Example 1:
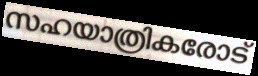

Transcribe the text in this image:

സഹയാത്രികരോട്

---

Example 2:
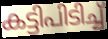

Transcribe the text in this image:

കട്ടിപിടിച്ച്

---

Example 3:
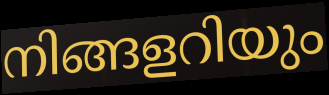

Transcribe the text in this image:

നിങ്ങളറിയും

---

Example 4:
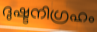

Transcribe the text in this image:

ദുഷ്ടനിഗ്രഹം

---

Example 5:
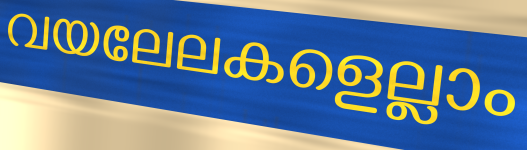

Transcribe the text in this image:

വയലേലകളെല്ലാം